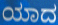
ಯಾದ